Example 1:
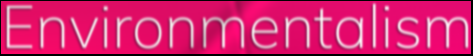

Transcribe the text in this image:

Environmentalism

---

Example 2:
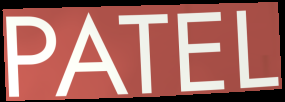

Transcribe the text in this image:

PATEL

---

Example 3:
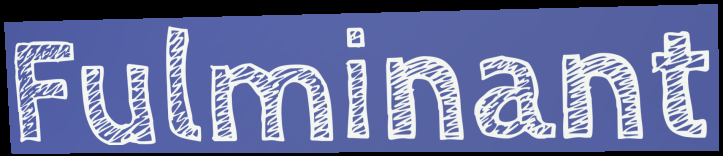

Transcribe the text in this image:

Fulminant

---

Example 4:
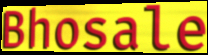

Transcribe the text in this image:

Bhosale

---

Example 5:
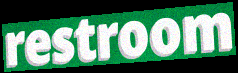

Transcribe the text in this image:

restroom